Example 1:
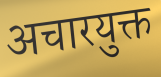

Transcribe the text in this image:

अचारयुक्त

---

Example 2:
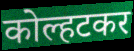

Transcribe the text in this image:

कोल्हटकर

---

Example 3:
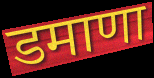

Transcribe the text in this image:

डमाणा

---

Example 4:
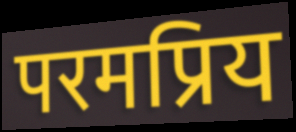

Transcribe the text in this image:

परमप्रिय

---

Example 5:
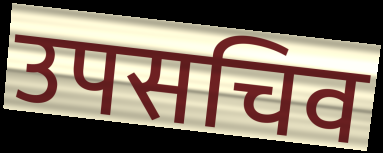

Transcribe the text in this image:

उपसचिव